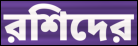
রশিদের